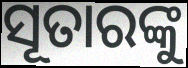
ସୂତାରଙ୍କୁ